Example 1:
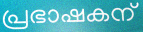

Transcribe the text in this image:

പ്രഭാഷകന്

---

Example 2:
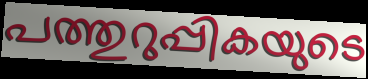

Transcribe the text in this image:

പത്തുറുപ്പികയുടെ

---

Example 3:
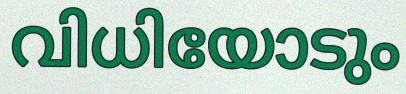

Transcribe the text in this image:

വിധിയോടും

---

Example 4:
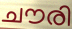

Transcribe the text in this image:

ചൗരി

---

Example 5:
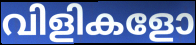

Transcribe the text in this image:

വിളികളോ